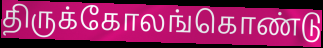
திருக்கோலங்கொண்டு